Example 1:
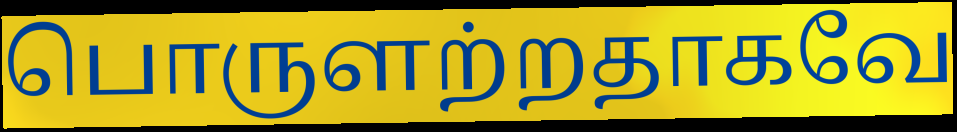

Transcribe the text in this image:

பொருளற்றதாகவே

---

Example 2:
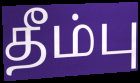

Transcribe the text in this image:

தீம்பு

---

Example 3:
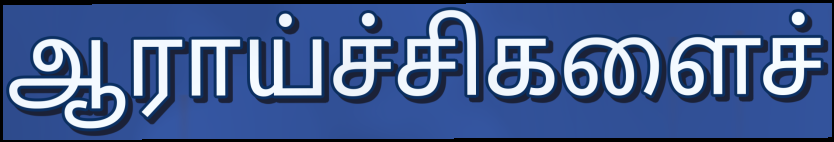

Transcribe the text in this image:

ஆராய்ச்சிகளைச்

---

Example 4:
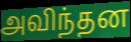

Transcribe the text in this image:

அவிந்தன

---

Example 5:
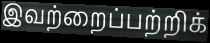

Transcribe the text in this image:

இவற்றைப்பற்றிக்